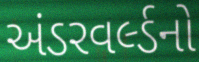
અંડરવર્લ્ડનો